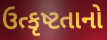
ઉત્કૃષ્ટતાનો